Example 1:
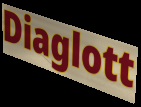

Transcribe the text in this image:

Diaglott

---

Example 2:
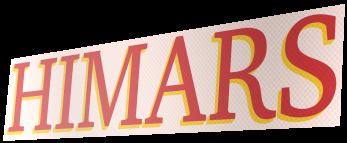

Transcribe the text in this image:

HIMARS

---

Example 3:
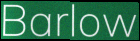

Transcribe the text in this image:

Barlow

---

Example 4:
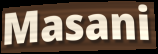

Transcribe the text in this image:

Masani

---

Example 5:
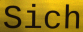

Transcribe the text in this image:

Sich